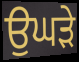
ਉਘੜੇ